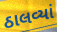
ઠાલવ્યાં